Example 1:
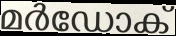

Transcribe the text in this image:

മർഡോക്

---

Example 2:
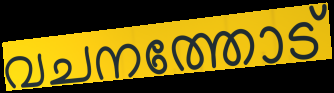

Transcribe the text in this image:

വചനത്തോട്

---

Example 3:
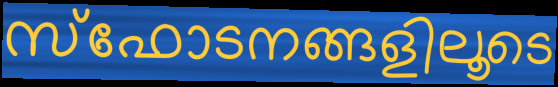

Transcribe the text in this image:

സ്ഫോടനങ്ങളിലൂടെ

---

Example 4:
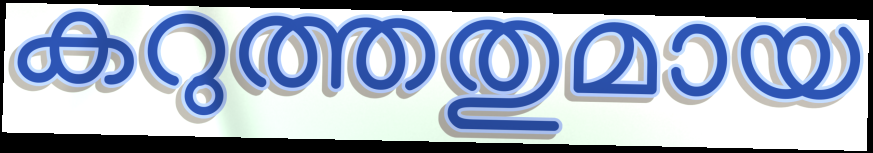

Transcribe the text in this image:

കറുത്തതുമായ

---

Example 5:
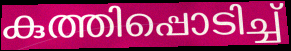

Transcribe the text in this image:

കുത്തിപ്പൊടിച്ച്